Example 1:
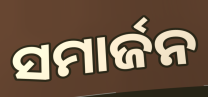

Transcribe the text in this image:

ସମାର୍ଜନ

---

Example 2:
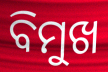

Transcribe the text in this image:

ବିମୁଖ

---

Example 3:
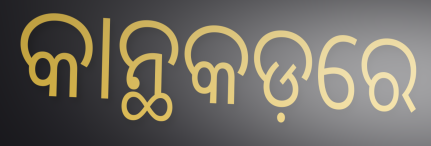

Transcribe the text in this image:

କାନ୍ଥକଡ଼ରେ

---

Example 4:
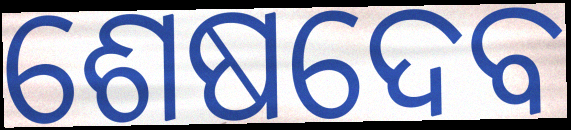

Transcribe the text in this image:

ଶେଷଦେବ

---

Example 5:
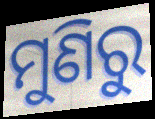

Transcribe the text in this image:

ମୁଣିରୁ